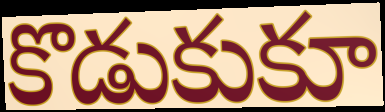
కొడుకుకూ